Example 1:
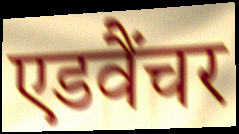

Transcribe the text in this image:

एडवैंचर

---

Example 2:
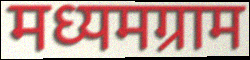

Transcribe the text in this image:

मध्यमग्राम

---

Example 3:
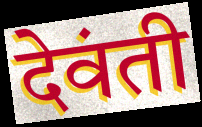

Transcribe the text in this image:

देवंती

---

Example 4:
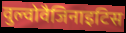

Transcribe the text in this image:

वुल्वोवैजिनाइटिस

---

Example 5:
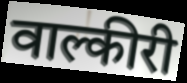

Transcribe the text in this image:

वाल्कीरी